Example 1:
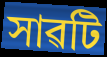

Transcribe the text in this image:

সাৱটি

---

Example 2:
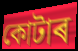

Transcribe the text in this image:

কোটাৰ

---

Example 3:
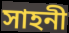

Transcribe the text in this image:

সাহনী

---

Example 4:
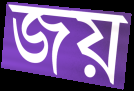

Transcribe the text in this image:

জয়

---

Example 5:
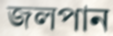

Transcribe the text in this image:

জলপান